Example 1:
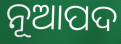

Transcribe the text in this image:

ନୂଆପଦ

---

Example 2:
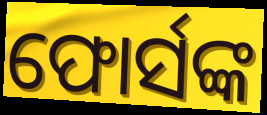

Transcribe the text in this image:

ଫୋର୍ସଙ୍କ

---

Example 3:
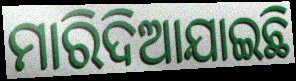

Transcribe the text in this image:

ମାରିଦିଆଯାଇଛି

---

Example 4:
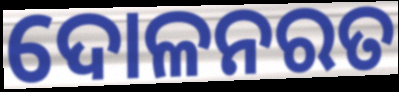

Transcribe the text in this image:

ଦୋଳନରତ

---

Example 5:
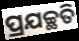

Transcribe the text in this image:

ପ୍ରଯଚ୍ଛତି